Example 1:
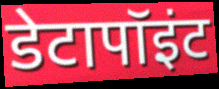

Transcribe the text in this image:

डेटापॉइंट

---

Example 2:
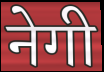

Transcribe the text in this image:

नेगी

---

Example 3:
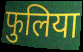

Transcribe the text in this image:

फुलिया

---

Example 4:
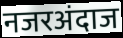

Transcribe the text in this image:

नजरअंदाज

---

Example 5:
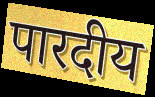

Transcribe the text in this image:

पारदीय